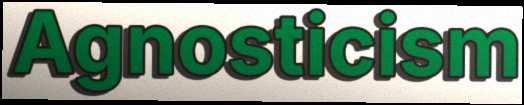
Agnosticism